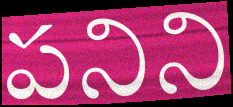
పనిని